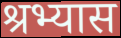
श्रभ्यास